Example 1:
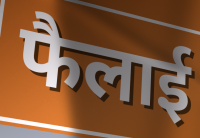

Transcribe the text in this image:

फैलाई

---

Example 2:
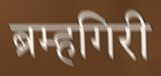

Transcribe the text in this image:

ब्रम्हगिरी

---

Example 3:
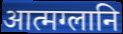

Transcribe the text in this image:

आत्मग्लानि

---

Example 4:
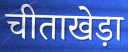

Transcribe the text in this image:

चीताखेड़ा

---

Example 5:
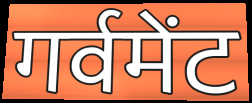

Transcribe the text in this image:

गर्वमेंट